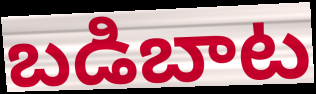
బడిబాట